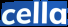
cella